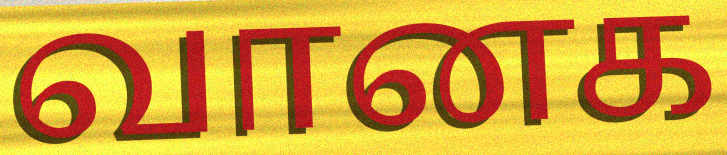
வானக